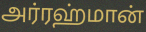
அர்ரஹ்மான்